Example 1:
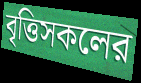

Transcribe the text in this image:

বৃত্তিসকলের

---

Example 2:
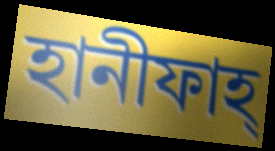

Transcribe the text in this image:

হানীফাহ্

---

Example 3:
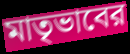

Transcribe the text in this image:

মাতৃভাবের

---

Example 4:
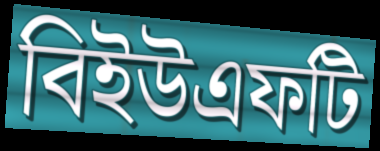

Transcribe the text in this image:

বিইউএফটি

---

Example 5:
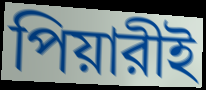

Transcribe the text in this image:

পিয়ারীই